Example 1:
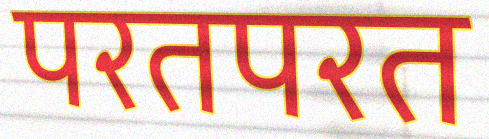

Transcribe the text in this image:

परतपरत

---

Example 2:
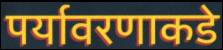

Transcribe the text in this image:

पर्यावरणाकडे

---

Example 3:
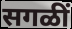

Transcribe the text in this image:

सगळीं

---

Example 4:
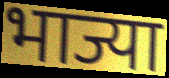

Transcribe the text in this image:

भाज्या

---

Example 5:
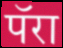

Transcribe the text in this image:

पॅरा